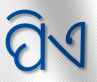
ପିଏ